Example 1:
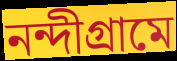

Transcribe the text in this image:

নন্দীগ্রামে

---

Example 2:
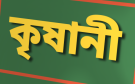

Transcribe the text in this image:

কৃষানী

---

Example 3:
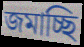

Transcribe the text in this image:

জমাচ্ছি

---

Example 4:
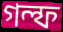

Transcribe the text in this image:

গল্ফ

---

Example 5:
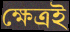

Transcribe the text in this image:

ক্ষেত্রই